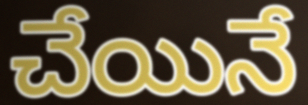
చేయినే